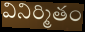
వినిర్మితం